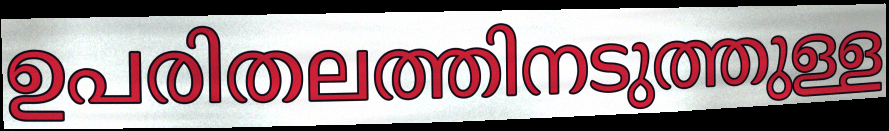
ഉപരിതലത്തിനടുത്തുള്ള